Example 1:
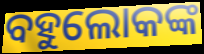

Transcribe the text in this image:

ବହୁଲୋକଙ୍କ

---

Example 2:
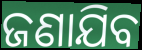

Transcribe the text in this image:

ଜଣାଯିବ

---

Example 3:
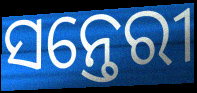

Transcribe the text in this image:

ସନ୍ତେରୀ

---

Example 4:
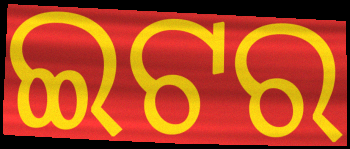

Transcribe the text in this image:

ଇଟର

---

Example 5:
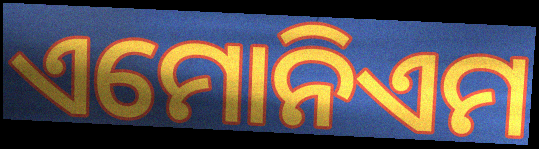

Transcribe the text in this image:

ଏମୋନିଏମ